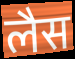
लैस